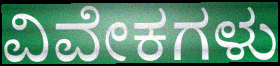
ವಿವೇಕಗಳು